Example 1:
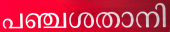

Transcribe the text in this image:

പഞ്ചശതാനി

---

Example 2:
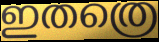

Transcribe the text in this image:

ഇതത്രെ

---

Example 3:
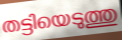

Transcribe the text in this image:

തട്ടിയെടുത്തു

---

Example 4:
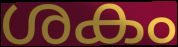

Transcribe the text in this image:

ശകം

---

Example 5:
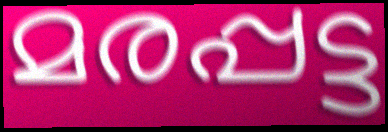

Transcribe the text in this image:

മരപ്പട്ട